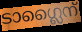
ടാഗ്ലൈന്